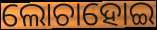
ଲୋଚାହୋଇ